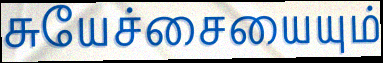
சுயேச்சையையும்